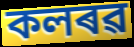
কলৰৱ